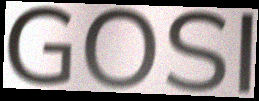
GOSI